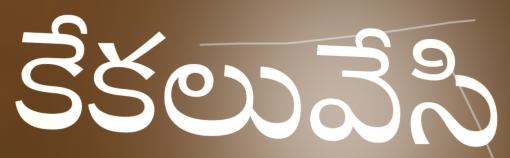
కేకలువేసి